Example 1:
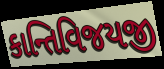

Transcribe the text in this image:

કાન્તિવિજયજી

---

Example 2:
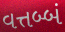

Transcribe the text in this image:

વત્તબ્બં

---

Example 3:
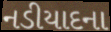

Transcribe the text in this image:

નડીયાદના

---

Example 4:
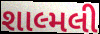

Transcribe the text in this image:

શાલ્મલી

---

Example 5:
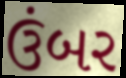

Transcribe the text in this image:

ઉંબર